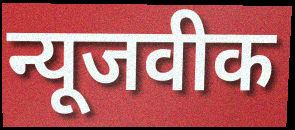
न्यूजवीक